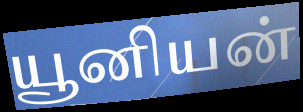
யூனியன்